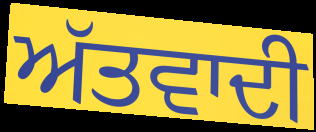
ਅੱਤਵਾਦੀ